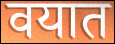
वयात